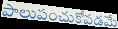
పాలుపంచుకోవడమే